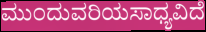
ಮುಂದುವರಿಯಸಾಧ್ಯವಿದೆ